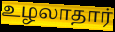
உழலாதார்